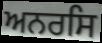
ਅਨਰਸਿ